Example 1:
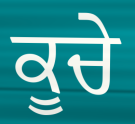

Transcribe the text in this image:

ਕੂਚੇ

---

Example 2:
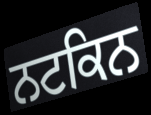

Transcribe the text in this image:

ਨਟਕਿਨ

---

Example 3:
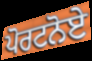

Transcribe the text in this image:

ਪੋਰਟਨੋਏ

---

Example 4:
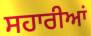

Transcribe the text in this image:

ਸਹਾਰੀਆਂ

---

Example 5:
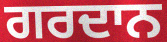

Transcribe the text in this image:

ਗਰਦਾਨ